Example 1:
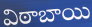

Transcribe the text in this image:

విఠాబాయి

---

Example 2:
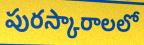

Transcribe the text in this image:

పురస్కారాలలో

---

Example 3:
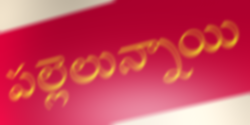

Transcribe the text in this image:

పల్లెలున్నాయి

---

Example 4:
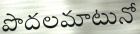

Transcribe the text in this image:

పొదలమాటునో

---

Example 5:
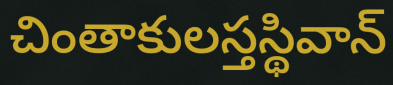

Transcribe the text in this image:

చింతాకులస్తస్థివాన్